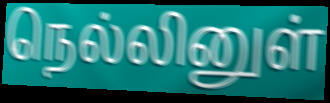
நெல்லினுள்